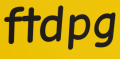
ftdpg